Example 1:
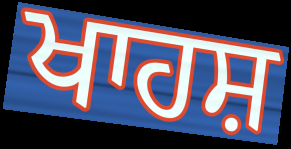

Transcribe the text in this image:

ਖਾਹਸ਼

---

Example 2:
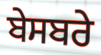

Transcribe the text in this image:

ਬੇਸਬਰੇ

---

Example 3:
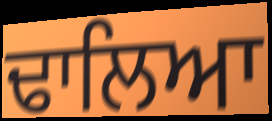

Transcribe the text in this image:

ਢਾਲਿਆ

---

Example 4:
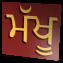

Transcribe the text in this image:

ਮੱਖੂ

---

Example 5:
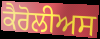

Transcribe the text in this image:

ਕੈਰੋਲੀਅਸ